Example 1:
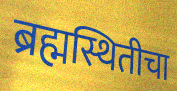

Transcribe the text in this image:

ब्रह्मस्थितीचा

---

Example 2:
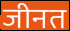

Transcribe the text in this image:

जीनत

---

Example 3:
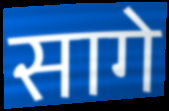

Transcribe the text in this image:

सागे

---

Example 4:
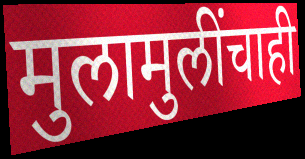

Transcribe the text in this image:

मुलामुलींचाही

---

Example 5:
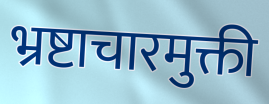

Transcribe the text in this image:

भ्रष्टाचारमुक्ती